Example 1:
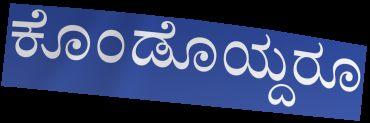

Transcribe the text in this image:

ಕೊಂಡೊಯ್ದರೂ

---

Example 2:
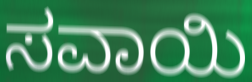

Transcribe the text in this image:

ಸವಾಯಿ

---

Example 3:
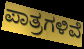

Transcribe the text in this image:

ಪಾತ್ರಗಳಿವೆ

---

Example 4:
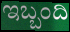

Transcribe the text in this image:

ಇಬ್ಬಂದಿ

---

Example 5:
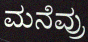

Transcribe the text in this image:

ಮನೆವ್ರು